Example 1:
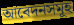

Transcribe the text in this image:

আবেদনসমূহ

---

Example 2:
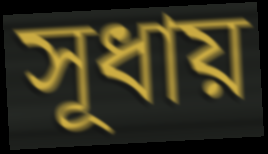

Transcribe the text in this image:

সূধায়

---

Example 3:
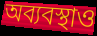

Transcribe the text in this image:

অব্যবস্থাও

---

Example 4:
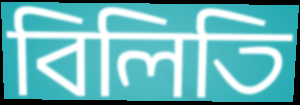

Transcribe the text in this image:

বিলিতি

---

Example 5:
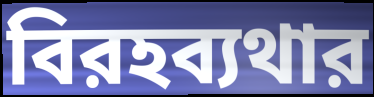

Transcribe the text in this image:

বিরহব্যথার